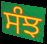
ਸੰਝ